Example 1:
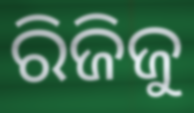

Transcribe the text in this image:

ରିଜିଜୁ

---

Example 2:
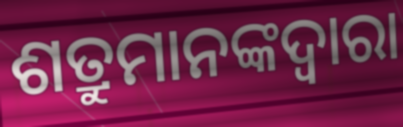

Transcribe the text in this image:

ଶତ୍ରୁମାନଙ୍କଦ୍ଵାରା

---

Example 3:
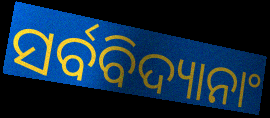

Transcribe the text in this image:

ସର୍ବବିଦ୍ୟାନାଂ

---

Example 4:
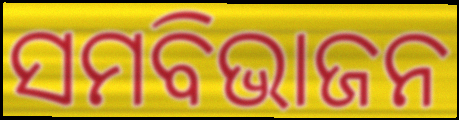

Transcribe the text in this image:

ସମବିଭାଜନ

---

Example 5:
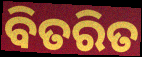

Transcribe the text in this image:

ବିତରିତ